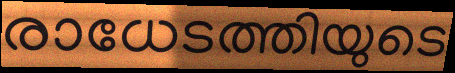
രാധേടത്തിയുടെ